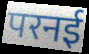
परनई